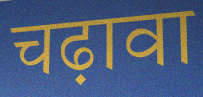
चढ़ावा